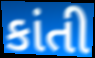
કાંતી